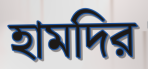
হামদির